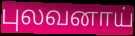
புலவனாய்